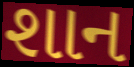
શાન